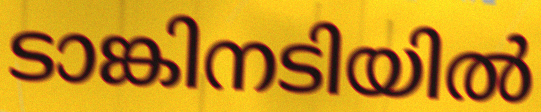
ടാങ്കിനടിയിൽ